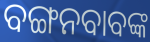
ବଙ୍ଗନବାବଙ୍କ